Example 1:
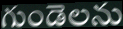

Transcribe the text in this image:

గుండెలను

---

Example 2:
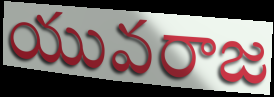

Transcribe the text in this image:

యువరాజ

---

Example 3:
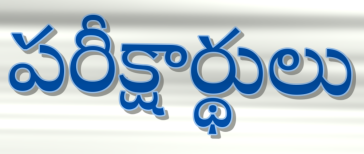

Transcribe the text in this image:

పరీక్షార్థులు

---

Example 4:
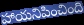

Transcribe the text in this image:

హాయనిపించింది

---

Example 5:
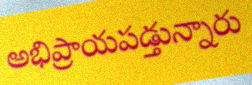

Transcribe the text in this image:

అభిప్రాయపడ్తున్నారు